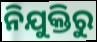
ନିଯୁକ୍ତିରୁ